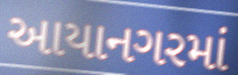
આયાનગરમાં